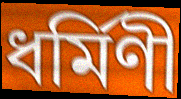
ধর্মিণী